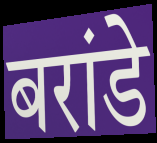
बरांडे